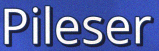
Pileser